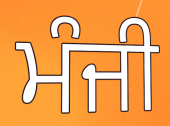
ਮੰਜੀ